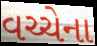
વચ્ચેના